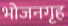
भोजनगृह